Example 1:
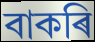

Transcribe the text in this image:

বাকৰি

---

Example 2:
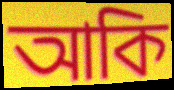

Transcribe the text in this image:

আকি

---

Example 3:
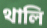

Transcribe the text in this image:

থালি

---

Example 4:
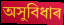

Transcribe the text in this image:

অসুবিধাৰ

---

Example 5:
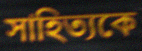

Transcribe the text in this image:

সাহিত্য়কে